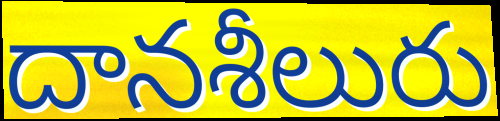
దానశీలురు